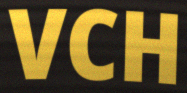
VCH